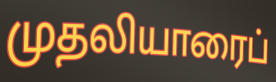
முதலியாரைப்